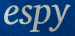
espy